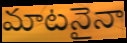
మాటనైనా